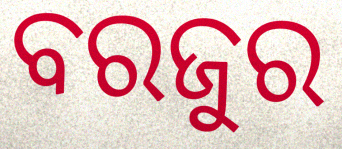
ବରଜୁର